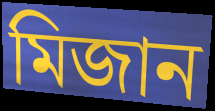
মিজান